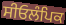
ਸੀਓਲੰਪਿਕ